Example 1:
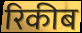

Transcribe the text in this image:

रिकीब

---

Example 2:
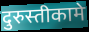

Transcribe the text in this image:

दुरुस्तीकामे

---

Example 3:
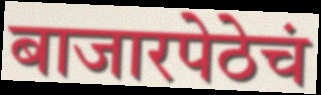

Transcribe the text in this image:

बाजारपेठेचं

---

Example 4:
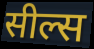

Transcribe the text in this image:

सील्स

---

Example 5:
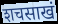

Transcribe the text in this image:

शचसाखं